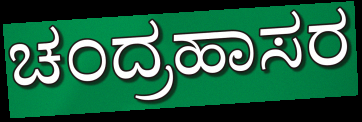
ಚಂದ್ರಹಾಸರ